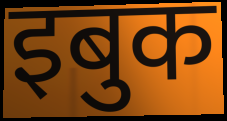
इबुक